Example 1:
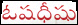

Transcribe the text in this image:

ఓషధీషు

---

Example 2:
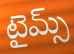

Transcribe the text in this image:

టైమ్స్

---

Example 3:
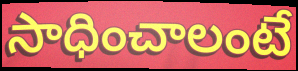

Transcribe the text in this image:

సాధించాలంటే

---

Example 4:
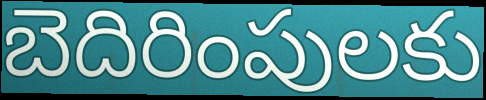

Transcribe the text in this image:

బెదిరింపులకు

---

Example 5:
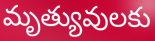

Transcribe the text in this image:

మృత్యువులకు